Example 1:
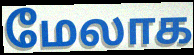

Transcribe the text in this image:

மேலாக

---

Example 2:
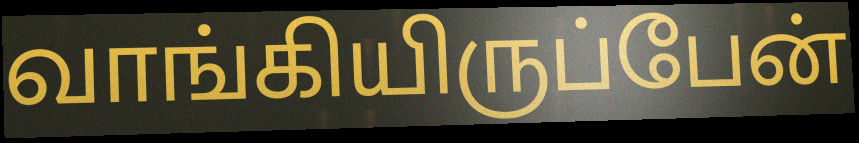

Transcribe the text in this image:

வாங்கியிருப்பேன்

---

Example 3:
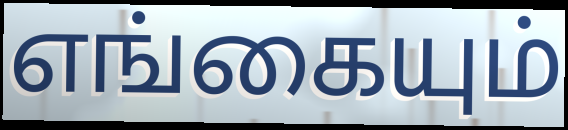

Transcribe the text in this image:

எங்கையும்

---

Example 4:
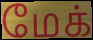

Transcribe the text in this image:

மேக்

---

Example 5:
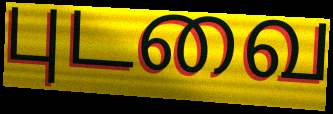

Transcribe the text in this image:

புடவை